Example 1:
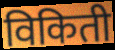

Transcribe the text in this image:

विकिती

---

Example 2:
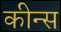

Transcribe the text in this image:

कीन्स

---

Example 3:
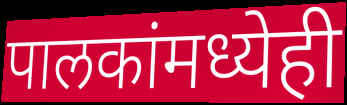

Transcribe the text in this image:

पालकांमध्येही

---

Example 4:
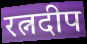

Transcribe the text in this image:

रत्नदीप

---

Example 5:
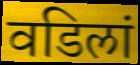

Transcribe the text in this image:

वडिलां